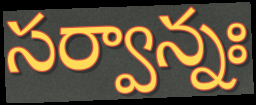
సర్వాన్నః